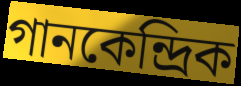
গানকেন্দ্রিক